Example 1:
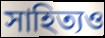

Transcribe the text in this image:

সাহিত্যও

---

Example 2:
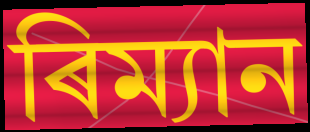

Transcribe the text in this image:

ৰিম্যান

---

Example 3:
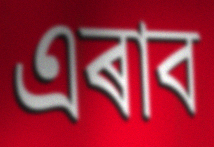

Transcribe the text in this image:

এৰাব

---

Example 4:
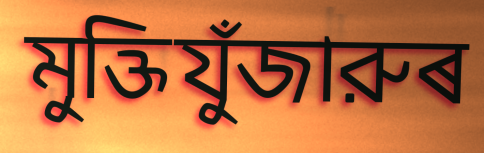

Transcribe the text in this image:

মুক্তিযুঁজাৰুৰ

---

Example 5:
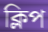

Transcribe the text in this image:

ক্লিপ